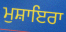
ਮੁਸ਼ਾਇਰਾ